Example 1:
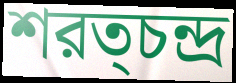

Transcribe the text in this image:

শরত্চন্দ্র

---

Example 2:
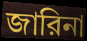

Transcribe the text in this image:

জারিনা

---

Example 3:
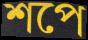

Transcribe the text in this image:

শপে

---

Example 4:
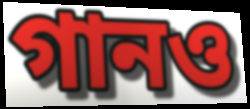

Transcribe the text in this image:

গানও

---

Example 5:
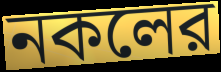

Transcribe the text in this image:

নকলের